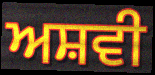
ਅਸ਼ਵੀ